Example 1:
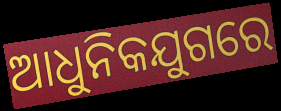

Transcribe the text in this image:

ଆଧୁନିକଯୁଗରେ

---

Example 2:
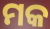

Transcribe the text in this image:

ମକ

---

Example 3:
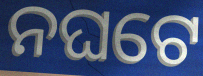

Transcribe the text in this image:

ନଘଟେ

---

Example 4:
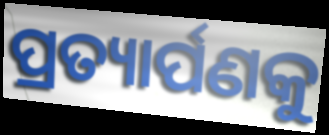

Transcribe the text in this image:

ପ୍ରତ୍ୟାର୍ପଣକୁ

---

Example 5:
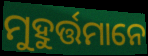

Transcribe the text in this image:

ମୁହୁର୍ତ୍ତମାନେ